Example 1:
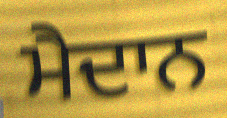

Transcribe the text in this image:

ਮੈਦਾਨ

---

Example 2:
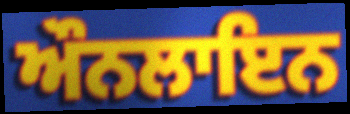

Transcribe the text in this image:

ਔਨਲਾਇਨ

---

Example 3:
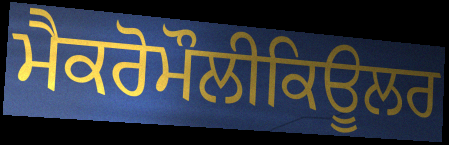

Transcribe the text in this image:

ਮੈਕਰੋਮੌਲੀਕਿਊਲਰ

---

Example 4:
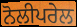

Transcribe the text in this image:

ਨੋਲੀਪਰੇਲ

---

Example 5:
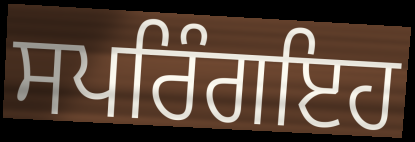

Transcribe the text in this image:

ਸਪਰਿੰਗਇਹ